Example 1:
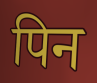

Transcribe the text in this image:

पिन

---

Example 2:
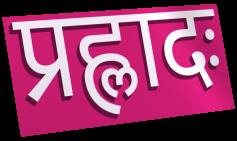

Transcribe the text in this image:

प्रह्लादः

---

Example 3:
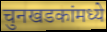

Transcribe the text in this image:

चुनखडकांमध्ये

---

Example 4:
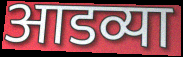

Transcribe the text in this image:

आडव्या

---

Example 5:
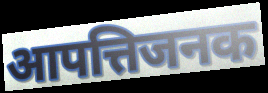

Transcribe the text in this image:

आपत्तिजनक